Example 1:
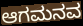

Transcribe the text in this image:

ಆಗಮನವ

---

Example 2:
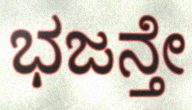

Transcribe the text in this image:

ಭಜನ್ತೇ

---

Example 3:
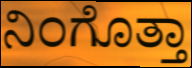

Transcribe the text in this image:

ನಿಂಗೊತ್ತಾ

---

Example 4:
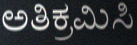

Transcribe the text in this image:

ಅತಿಕ್ರಮಿಸಿ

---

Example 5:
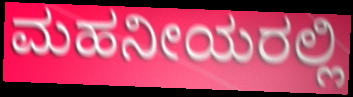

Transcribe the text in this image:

ಮಹನೀಯರಲ್ಲಿ